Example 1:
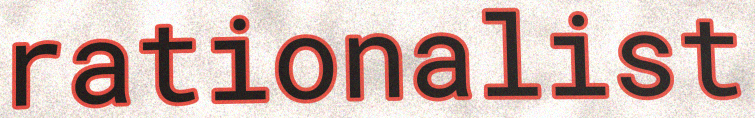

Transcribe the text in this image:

rationalist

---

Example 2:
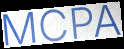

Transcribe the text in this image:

MCPA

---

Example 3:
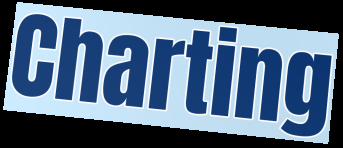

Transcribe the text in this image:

Charting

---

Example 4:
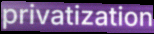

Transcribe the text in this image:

privatization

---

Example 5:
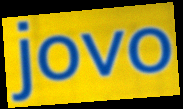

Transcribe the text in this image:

jovo